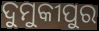
ଦୁମୁକୀପୁର